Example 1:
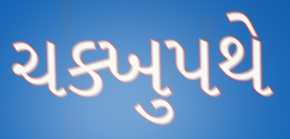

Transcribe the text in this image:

ચક્ખુપથે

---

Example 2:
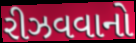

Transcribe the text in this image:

રીઝવવાનો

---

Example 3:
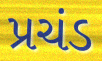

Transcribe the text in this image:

પ્રચંડ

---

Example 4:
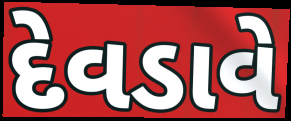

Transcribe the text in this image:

દેવડાવે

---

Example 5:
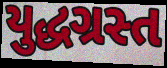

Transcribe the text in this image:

યુદ્ધગ્રસ્ત